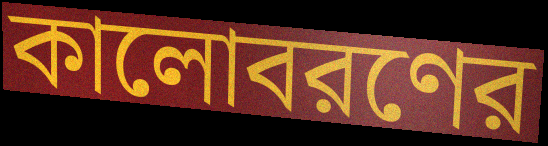
কালোবরণের